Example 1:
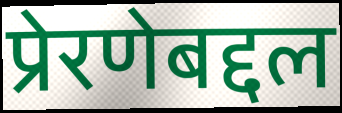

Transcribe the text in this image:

प्रेरणेबद्दल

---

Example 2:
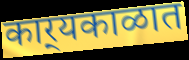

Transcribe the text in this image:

कार्यकाळात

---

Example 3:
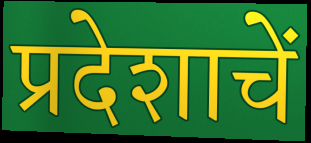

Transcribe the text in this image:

प्रदेशाचें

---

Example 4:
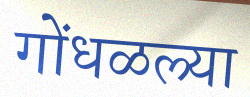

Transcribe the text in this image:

गोंधळल्या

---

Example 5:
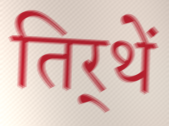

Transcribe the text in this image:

तिर्थें